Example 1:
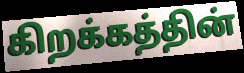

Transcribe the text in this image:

கிறக்கத்தின்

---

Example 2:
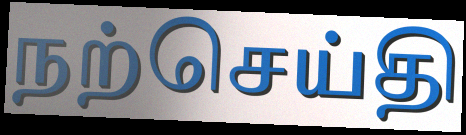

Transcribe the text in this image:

நற்செய்தி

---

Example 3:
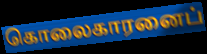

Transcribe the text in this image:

கொலைகாரனைப்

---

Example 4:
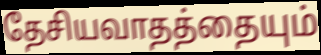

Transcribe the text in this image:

தேசியவாதத்தையும்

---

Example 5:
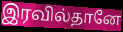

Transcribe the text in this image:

இரவில்தானே